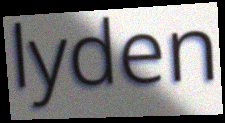
lyden